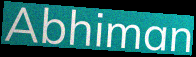
Abhiman